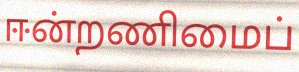
ஈன்றணிமைப்